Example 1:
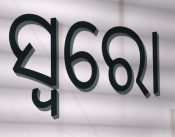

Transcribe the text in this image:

ସ୍ୱରୋ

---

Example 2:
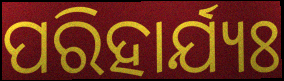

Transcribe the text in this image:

ପରିହାର୍ଯ୍ୟଃ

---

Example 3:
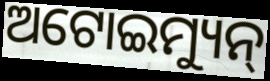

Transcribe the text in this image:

ଅଟୋଇମ୍ୟୁନ୍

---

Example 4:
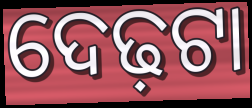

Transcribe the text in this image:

ଦେଢ଼ଟା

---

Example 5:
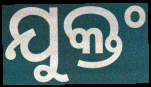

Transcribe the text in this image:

ଯୁକ୍ତଂ